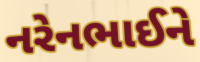
નરેનભાઈને